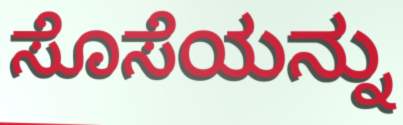
ಸೊಸೆಯನ್ನು